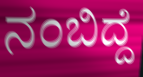
ನಂಬಿದ್ದೆ